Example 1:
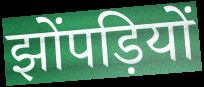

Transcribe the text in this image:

झोंपड़ियों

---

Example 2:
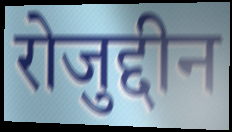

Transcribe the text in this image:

रोजुद्दीन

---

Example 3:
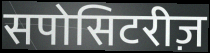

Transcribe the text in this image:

सपोसिटरीज़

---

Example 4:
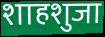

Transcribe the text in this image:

शाहशुजा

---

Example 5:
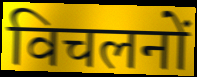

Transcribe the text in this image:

विचलनों